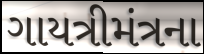
ગાયત્રીમંત્રના